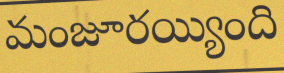
మంజూరయ్యింది